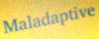
Maladaptive